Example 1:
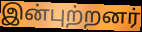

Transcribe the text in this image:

இன்புற்றனர்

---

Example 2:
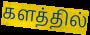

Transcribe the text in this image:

களத்தில்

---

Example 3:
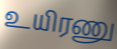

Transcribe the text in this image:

உயிரணு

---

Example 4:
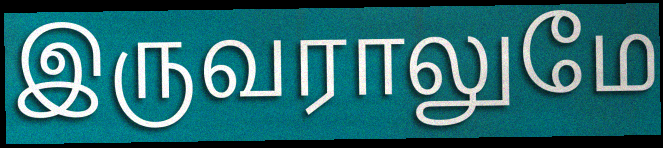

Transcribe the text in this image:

இருவராலுமே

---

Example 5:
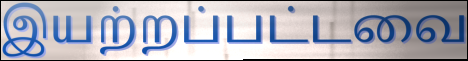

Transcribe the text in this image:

இயற்றப்பட்டவை